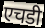
एचडी